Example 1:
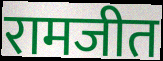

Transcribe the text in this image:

रामजीत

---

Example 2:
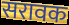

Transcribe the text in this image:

सरावक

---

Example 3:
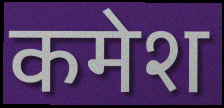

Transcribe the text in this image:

कमेश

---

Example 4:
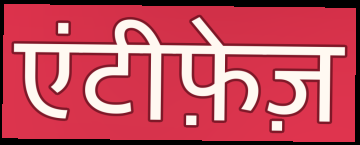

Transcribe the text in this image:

एंटीफ़ेज़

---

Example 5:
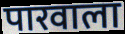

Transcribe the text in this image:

पारवाला